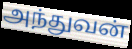
அந்துவன்